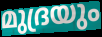
മുദ്രയും